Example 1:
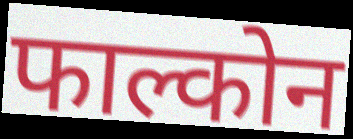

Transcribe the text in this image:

फाल्कोन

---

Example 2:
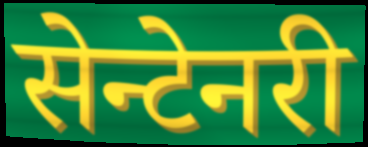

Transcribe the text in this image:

सेन्टेनरी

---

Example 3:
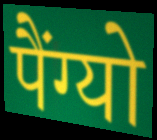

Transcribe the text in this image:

पैंग्यो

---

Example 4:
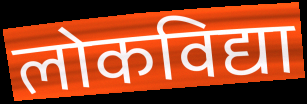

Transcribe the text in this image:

लोकविद्या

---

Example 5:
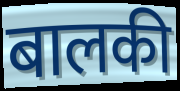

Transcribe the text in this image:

बालकी